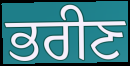
ਭਰੀਣ